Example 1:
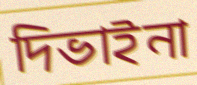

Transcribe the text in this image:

দিভাইনা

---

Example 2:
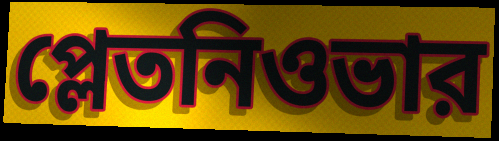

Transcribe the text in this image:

প্লেতনিওভার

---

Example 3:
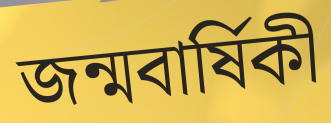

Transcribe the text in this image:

জন্মবার্ষিকী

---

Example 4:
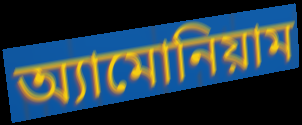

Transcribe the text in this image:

অ্যামোনিয়াম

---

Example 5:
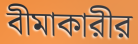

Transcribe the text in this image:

বীমাকারীর